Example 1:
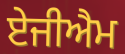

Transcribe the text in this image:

ਏਜੀਐਮ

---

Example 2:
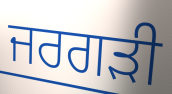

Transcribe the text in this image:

ਜਰਗੜੀ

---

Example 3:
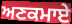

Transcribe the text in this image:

ਅਣਕਮਾਏ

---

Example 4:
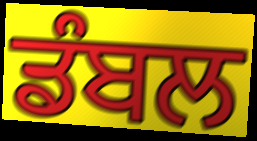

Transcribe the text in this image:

ਡੰਬਲ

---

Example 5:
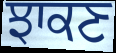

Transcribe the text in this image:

ਝਾਕਣ